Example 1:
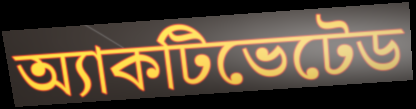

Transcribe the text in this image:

অ্যাকটিভেটেড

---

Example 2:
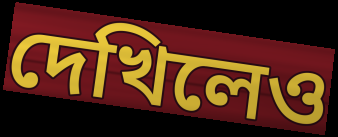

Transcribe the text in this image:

দেখিলেও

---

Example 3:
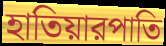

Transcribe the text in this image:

হাতিয়ারপাতি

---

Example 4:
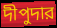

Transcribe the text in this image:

দীপুদার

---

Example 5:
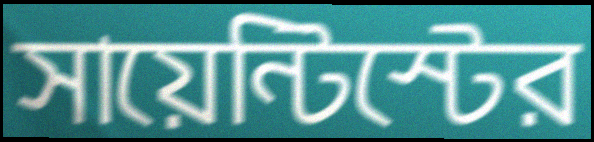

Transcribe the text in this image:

সায়েন্টিস্টের